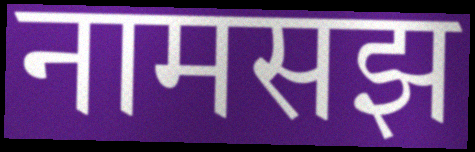
नामसझ